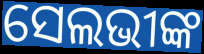
ସେଲଭୀଙ୍କ